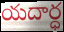
యదార్ధ